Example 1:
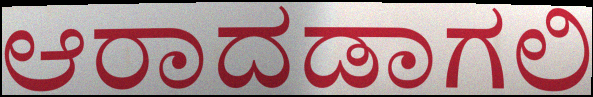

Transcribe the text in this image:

ಆರಾದಡಾಗಲಿ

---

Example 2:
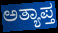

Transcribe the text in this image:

ಅತ್ಯಾಪ್ತ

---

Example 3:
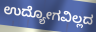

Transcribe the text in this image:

ಉದ್ಯೋಗವಿಲ್ಲದ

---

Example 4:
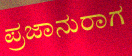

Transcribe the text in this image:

ಪ್ರಜಾನುರಾಗ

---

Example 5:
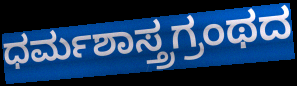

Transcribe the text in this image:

ಧರ್ಮಶಾಸ್ತ್ರಗ್ರಂಥದ